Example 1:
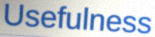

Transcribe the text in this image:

Usefulness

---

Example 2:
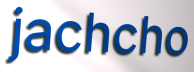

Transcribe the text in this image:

jachcho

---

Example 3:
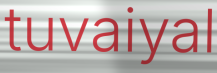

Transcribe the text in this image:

tuvaiyal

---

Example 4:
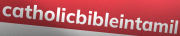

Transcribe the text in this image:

catholicbibleintamil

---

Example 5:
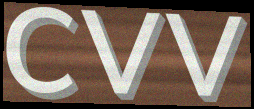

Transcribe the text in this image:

cvv